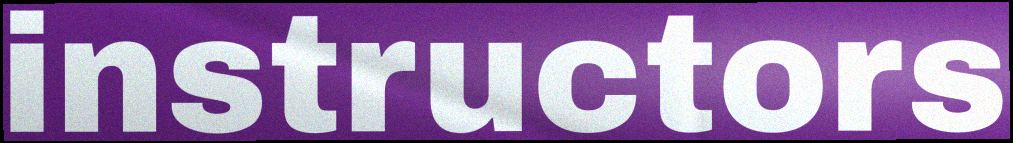
instructors